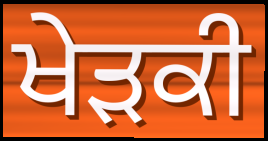
ਖੇੜਕੀ